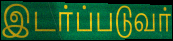
இடர்ப்படுவர்